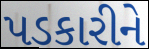
પડકારીને